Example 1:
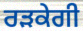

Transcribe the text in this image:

ਰੜਕੇਗੀ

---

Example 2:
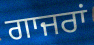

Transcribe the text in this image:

ਗਾਜਰਾਂ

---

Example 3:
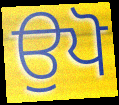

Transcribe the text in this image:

ਉਪੋ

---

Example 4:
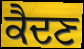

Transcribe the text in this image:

ਕੈਦਣ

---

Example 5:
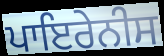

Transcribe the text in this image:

ਪਾਇਰੇਨੀਸ